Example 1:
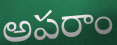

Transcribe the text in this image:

అపరాం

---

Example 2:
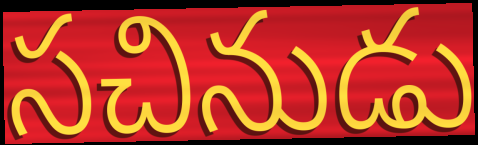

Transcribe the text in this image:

సచినుడు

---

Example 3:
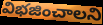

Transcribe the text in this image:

విభజించాలని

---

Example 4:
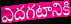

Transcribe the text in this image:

ఎదగటానికి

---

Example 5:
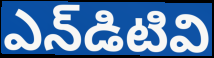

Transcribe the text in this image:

ఎన్‌డిటివి